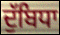
ਦੁੱਬਿਧਾ